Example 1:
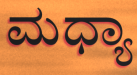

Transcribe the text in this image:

ಮಧ್ಯಾ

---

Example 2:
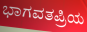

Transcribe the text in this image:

ಭಾಗವತಪ್ರಿಯ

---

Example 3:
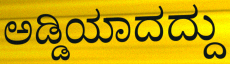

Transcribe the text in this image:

ಅಡ್ಡಿಯಾದದ್ದು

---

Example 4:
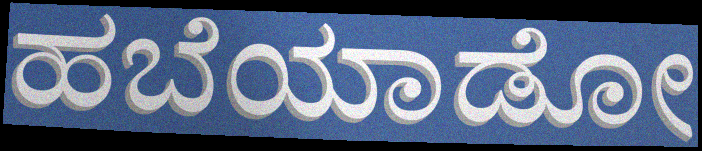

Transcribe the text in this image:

ಹಬೆಯಾಡೋ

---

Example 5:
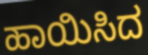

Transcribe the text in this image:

ಹಾಯಿಸಿದ